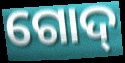
ଗୋଦ୍